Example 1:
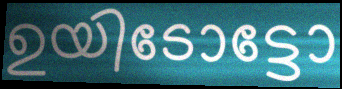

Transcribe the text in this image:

ഉയിടോട്ടോ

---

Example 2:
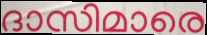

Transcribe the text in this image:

ദാസിമാരെ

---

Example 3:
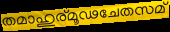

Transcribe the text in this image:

തമാഹുര്മൂഢചേതസമ്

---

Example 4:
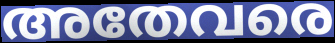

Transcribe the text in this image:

അതേവരെ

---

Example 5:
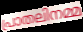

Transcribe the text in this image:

പ്രാതലിനമ്മ